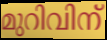
മുറിവിന്